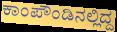
ಕಾಂಪೌಂಡಿನಲ್ಲಿದ್ದ